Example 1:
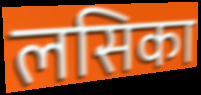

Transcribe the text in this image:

लसिका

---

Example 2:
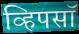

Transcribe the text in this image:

व्हिपसॉ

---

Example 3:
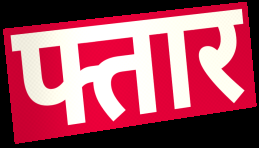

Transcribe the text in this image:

फ्तार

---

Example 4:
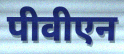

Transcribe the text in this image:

पीवीएन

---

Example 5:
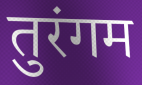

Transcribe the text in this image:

तुरंगम